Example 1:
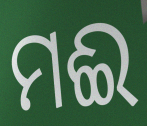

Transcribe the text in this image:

ମଈ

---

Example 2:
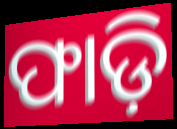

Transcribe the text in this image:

ଫାଡ଼ି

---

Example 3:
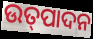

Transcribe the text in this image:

ଉତ୍‌ପାଦନ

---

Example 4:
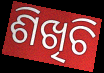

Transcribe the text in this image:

ଶିଖିଚି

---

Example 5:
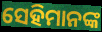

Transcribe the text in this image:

ସେହିମାନଙ୍କ